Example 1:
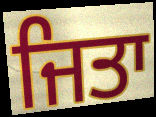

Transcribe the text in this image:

ਜਿਤਾ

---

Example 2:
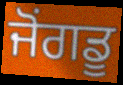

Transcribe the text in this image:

ਜੋਂਗਡੂ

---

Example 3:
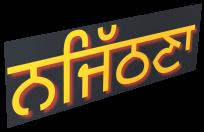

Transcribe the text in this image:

ਨਜਿੱਠਣਾ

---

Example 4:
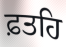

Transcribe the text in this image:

ਫ਼ਤਹਿ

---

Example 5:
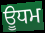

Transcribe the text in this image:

ਊਧਮ